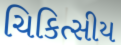
ચિકિત્સીય